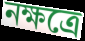
নক্ষত্রে